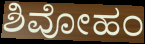
ಶಿವೋಹಂ